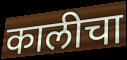
कालीचा